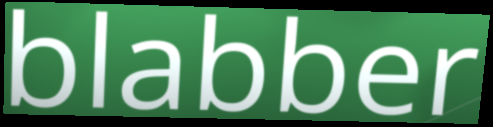
blabber